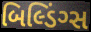
બિલ્ડિંગ્સ